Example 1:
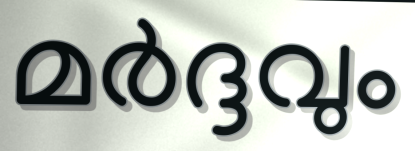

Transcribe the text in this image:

മർദ്ദവും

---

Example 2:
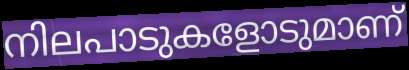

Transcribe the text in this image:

നിലപാടുകളോടുമാണ്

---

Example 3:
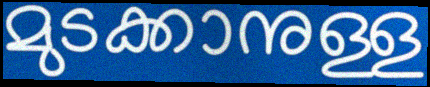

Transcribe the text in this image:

മുടക്കാനുള്ള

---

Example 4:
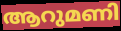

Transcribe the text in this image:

ആറുമണി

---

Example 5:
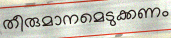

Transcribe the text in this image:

തീരുമാനമെടുക്കണം